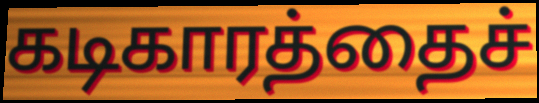
கடிகாரத்தைச்